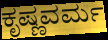
ಕೃಷ್ಣವರ್ಮ